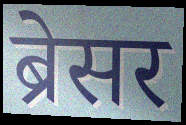
ब्रेसर